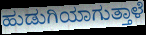
ಹುಡುಗಿಯಾಗುತ್ತಾಳೆ